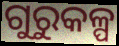
ଗୁରୁକଳ୍ପ